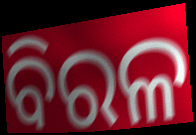
ବିରଳ